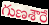
గుణశౌరే